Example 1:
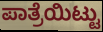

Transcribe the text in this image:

ಪಾತ್ರೆಯಿಟ್ಟು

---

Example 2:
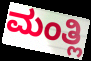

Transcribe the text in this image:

ಮಂತ್ಲಿ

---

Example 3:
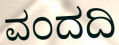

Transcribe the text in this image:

ವಂದದಿ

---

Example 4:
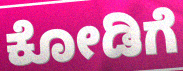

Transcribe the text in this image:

ಕೋಡಿಗೆ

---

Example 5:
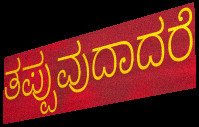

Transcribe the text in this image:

ತಪ್ಪುವುದಾದರೆ